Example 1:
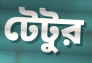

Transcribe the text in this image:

টেটুর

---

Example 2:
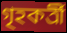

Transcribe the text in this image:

গৃহকর্ত্রী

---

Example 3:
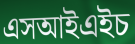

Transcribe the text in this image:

এসআইএইচ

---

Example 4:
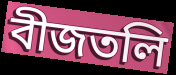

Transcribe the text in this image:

বীজতলি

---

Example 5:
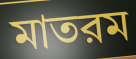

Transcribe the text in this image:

মাতরম